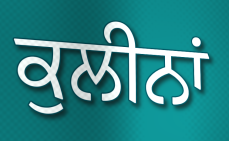
ਕੁਲੀਨਾਂ